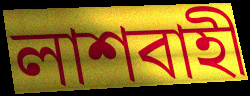
লাশবাহী